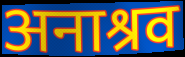
अनाश्रव